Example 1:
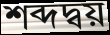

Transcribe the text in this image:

শব্দদ্বয়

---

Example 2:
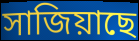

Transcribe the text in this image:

সাজিয়াছে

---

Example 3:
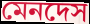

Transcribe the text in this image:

মেনদেস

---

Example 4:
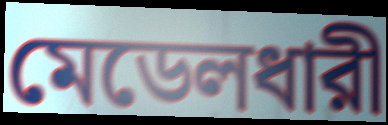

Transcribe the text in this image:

মেডেলধারী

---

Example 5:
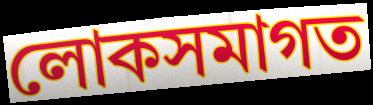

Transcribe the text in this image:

লোকসমাগত